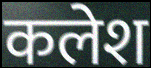
कलेश